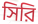
সিরি